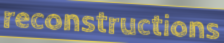
reconstructions